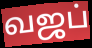
வஜப்